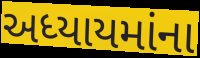
અધ્યાયમાંના